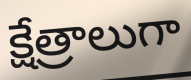
క్షేత్రాలుగా